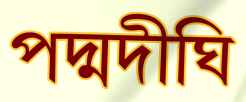
পদ্মদীঘি